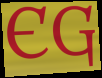
EG